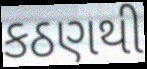
કઠણથી